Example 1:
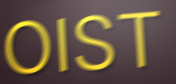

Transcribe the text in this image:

OIST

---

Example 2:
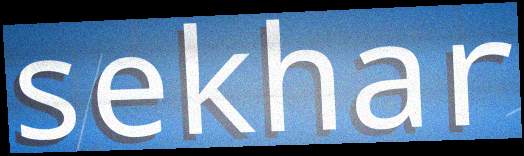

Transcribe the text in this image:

sekhar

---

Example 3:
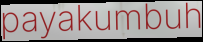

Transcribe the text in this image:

payakumbuh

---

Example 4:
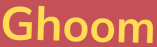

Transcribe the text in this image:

Ghoom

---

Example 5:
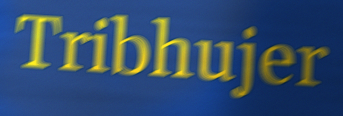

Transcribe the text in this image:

Tribhujer